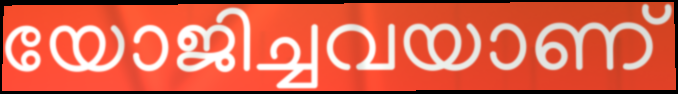
യോജിച്ചവയാണ്